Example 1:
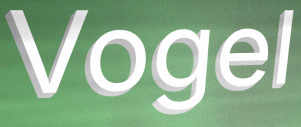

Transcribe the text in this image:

Vogel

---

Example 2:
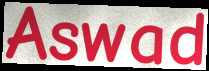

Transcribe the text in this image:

Aswad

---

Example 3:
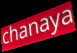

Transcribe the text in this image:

chanaya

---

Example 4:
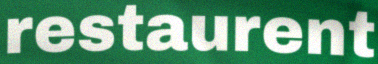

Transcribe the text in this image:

restaurent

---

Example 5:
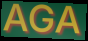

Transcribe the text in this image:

AGA